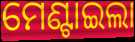
ମେଣ୍ଟାଇଲା